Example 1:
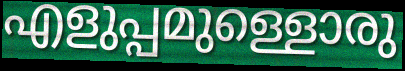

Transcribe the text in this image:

എളുപ്പമുള്ളൊരു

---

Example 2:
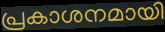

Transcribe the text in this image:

പ്രകാശനമായി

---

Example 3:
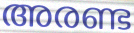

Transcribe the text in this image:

അരണ്ട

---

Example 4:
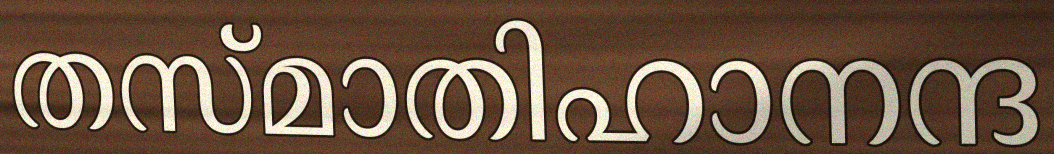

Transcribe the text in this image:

തസ്മാതിഹാനന്ദ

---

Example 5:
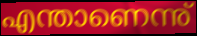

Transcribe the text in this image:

എന്താണെന്നു്